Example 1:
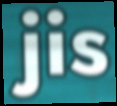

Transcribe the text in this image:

jis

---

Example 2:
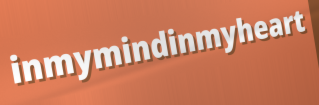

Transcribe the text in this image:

inmymindinmyheart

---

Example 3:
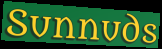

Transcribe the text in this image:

Sunnuds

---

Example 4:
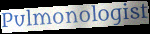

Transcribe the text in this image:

Pulmonologist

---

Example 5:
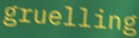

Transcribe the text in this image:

gruelling